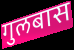
गुलबास